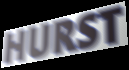
HURST